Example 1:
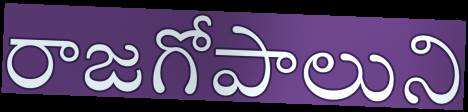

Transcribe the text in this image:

రాజగోపాలుని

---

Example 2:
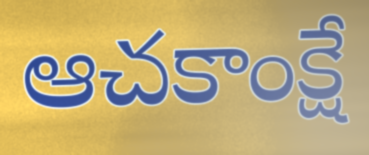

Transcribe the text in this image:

ఆచకాంక్షే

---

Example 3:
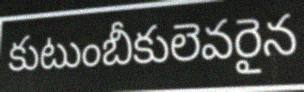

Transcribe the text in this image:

కుటుంబీకులెవరైన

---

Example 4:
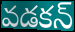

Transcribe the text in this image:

వడకన్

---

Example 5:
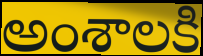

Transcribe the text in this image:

అంశాలకి